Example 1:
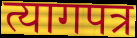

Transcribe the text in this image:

त्‍यागपत्र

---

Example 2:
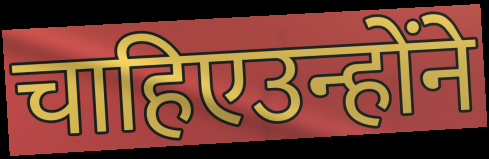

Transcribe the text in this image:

चाहिएउन्होंने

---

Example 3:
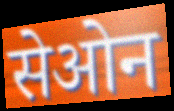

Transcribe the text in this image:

सेओन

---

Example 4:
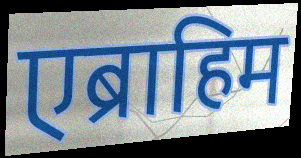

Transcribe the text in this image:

एब्राहिम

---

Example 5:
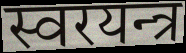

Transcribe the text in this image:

स्वरयन्त्र